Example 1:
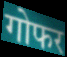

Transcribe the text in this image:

गोफर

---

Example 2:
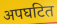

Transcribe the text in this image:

अपघटित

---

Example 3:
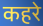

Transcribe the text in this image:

कहरे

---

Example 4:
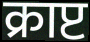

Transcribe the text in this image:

क्राप्ट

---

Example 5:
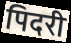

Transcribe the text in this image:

पिदरी